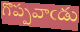
గొప్పవాఁడు